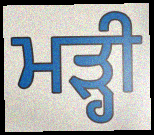
ਮੜ੍ਹੀ